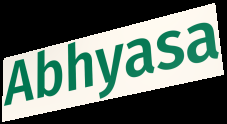
Abhyasa